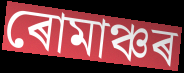
ৰোমাঞ্চৰ